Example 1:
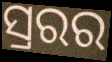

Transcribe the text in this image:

ସ୍ରରର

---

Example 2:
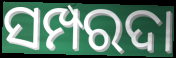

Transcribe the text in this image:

ସମ୍ପରଦା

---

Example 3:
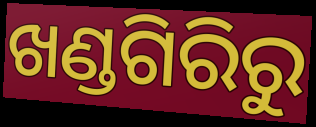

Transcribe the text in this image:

ଖଣ୍ଡଗିରିରୁ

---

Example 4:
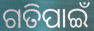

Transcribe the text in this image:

ଗତିପାଇଁ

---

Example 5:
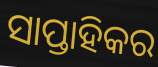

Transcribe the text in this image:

ସାପ୍ତାହିକର